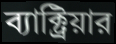
ব্যাক্ট্রিয়ার